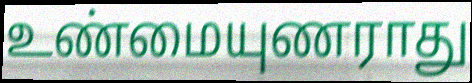
உண்மையுணராது